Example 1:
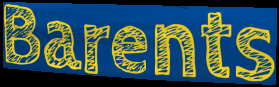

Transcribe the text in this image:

Barents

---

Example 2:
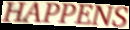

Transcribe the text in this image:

HAPPENS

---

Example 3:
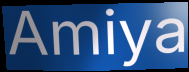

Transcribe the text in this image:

Amiya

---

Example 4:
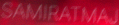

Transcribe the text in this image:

SAMIRATMAJ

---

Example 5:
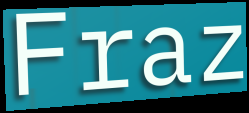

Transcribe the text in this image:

Fraz